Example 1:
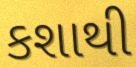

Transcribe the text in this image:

કશાથી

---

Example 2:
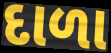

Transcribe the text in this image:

દાળા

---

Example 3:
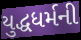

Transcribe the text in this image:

યુદ્ધધર્મની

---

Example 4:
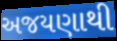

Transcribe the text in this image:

અજયણાથી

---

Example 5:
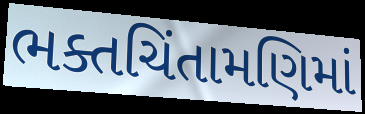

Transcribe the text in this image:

ભક્તચિંતામણિમાં